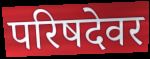
परिषदेवर